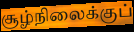
சூழ்நிலைக்குப்